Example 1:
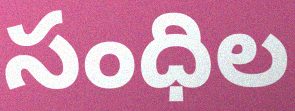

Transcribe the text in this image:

సంధిల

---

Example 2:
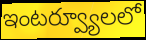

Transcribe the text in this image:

ఇంటర్వ్యూలలో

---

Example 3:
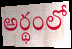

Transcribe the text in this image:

అర్థంలో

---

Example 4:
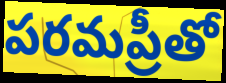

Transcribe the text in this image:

పరమప్రీతో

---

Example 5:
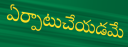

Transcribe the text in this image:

ఏర్పాటుచేయడమే